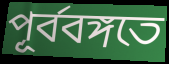
পূর্ববঙ্গতে